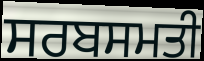
ਸਰਬਸਮਤੀ